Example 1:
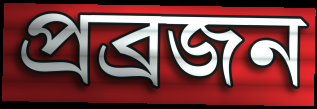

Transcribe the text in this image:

প্ৰব্ৰজন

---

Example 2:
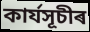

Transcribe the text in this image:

কাৰ্যসূচীৰ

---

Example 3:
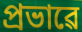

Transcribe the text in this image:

প্ৰভাৱে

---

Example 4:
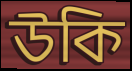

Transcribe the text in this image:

উকি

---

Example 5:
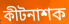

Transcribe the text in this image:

কীটনাশক